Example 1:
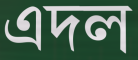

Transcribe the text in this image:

এদল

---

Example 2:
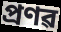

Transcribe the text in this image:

প্ৰণৱ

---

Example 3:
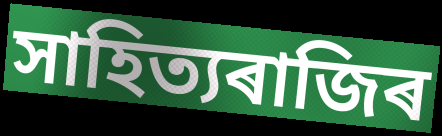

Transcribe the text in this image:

সাহিত্যৰাজিৰ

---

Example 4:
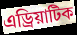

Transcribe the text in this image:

এড্ৰিয়াটিক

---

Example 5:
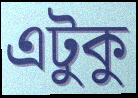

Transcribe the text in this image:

এটুকু